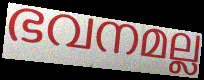
ഭവനമല്ല